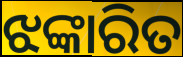
ଝଙ୍କାରିତ